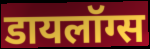
डायलॉग्स